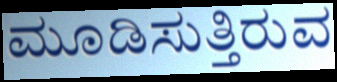
ಮೂಡಿಸುತ್ತಿರುವ